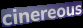
cinereous